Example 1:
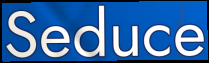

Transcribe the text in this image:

Seduce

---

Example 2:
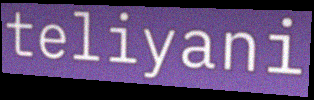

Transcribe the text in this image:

teliyani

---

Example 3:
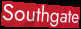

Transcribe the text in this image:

Southgate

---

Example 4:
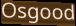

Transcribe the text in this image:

Osgood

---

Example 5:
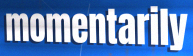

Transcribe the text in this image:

momentarily